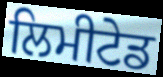
ਲਿਮੀਟੇਡ